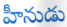
హీనుడు